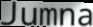
Jumna